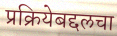
प्रक्रियेबद्दलचा